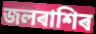
জলৰাশিৰ